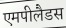
एमपीलैडस